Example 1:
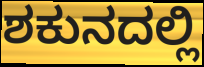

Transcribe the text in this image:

ಶಕುನದಲ್ಲಿ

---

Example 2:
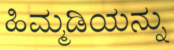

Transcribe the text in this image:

ಹಿಮ್ಮಡಿಯನ್ನು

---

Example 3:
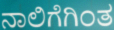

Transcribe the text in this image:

ನಾಲಿಗೆಗಿಂತ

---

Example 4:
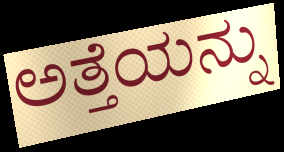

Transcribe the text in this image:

ಅತ್ತೆಯನ್ನು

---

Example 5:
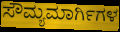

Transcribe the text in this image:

ಸೌಮ್ಯಮಾರ್ಗಿಗಳ